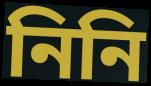
নিনি